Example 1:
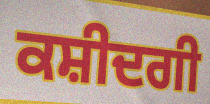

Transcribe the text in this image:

ਕਸ਼ੀਦਗੀ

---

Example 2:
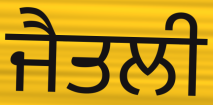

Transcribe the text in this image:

ਜੈਤਲੀ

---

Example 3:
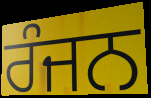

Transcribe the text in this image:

ਰੰਜਨ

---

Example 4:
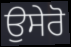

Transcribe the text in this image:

ਉਸੇਰੋ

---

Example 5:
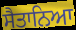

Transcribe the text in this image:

ਸੈਤਾਨਿਆ